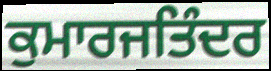
ਕੁਮਾਰਜਤਿੰਦਰ